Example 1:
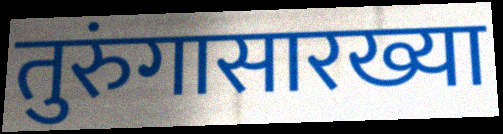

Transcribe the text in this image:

तुरुंगासारख्या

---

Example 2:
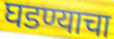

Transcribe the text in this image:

घडण्याचा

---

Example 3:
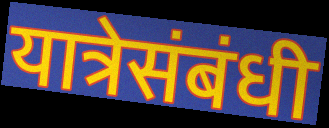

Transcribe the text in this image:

यात्रेसंबंधी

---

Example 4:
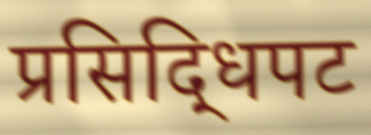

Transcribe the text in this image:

प्रसिद्धिपट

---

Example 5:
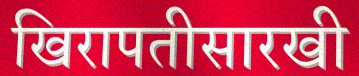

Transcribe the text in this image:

खिरापतीसारखी